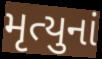
મૃત્યુનાં